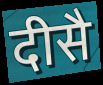
दीसै